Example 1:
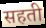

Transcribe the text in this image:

सहती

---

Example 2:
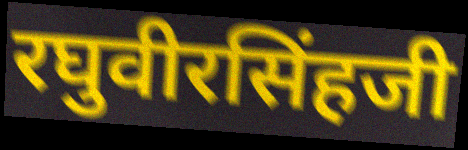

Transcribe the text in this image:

रघुवीरसिंहजी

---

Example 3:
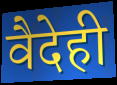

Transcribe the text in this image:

वैदेही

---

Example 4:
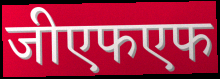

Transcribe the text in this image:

जीएफएफ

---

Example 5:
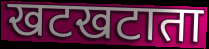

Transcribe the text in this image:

खटखटाता